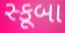
સ્કૂબા